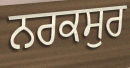
ਨਰਕਸੁਰ